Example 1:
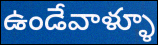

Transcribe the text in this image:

ఉండేవాళ్ళూ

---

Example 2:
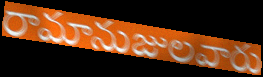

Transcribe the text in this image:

రామానుజులవారు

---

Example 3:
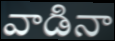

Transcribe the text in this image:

వాడినా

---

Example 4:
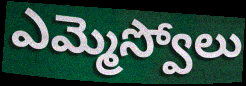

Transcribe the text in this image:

ఎమ్మెస్వోలు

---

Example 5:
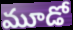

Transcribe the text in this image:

మూడో